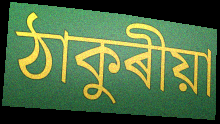
ঠাকুৰীয়া